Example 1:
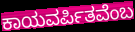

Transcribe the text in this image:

ಕಾಯವರ್ಪಿತವೆಂಬ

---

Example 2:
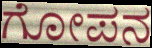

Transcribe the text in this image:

ಗೋಪನ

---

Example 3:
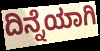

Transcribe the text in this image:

ದಿನ್ನೆಯಾಗಿ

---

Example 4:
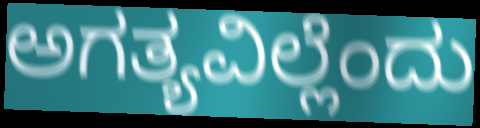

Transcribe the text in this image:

ಅಗತ್ಯವಿಲ್ಲೆಂದು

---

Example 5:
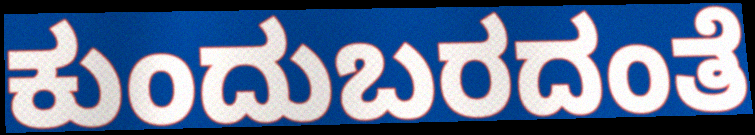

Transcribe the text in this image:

ಕುಂದುಬರದಂತೆ